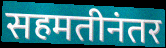
सहमतीनंतर